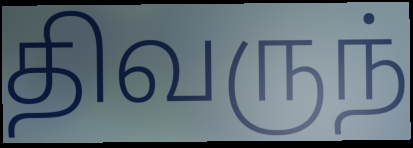
திவருந்